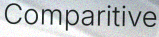
Comparitive